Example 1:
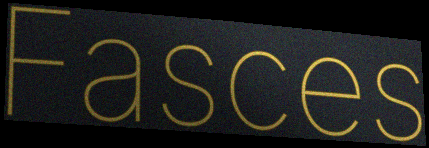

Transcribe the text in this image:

Fasces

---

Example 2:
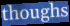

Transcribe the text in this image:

thoughs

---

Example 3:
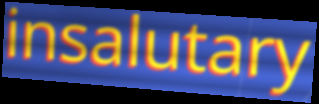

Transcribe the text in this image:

insalutary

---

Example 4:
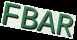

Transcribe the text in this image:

FBAR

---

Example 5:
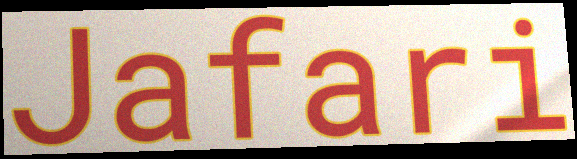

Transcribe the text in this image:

Jafari